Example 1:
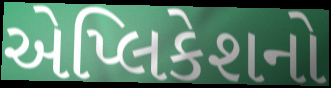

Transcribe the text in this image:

એપ્લિકેશનો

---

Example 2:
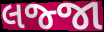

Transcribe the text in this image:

લજ્જા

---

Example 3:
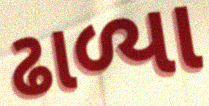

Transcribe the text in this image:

ઢાળ્યા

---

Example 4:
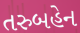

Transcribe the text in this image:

તરુબહેન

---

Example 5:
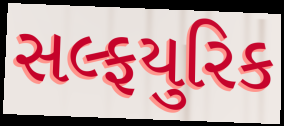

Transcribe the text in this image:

સલ્ફયુરિક